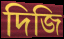
দিজি